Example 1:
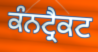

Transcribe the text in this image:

ਕੰਨਟ੍ਰੈਕਟ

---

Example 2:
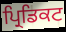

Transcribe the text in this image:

ਪ੍ਰਿਡਿਕਟ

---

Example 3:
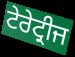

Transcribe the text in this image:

ਟੇਰੇਟ੍ਰੀਜ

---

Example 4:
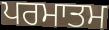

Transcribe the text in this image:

ਪਰਮਾਤਮ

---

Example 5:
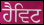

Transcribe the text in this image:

ਹੈਵਿਟ